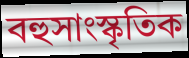
বহুসাংস্কৃতিক